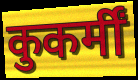
कुकर्मीं